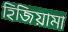
হিজিয়ামা